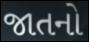
જાતનો